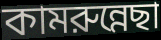
কামরুন্নেছা